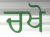
ਚਖੋ